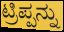
ಟ್ರಿಪ್ಪನ್ನು